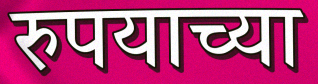
रुपयाच्या